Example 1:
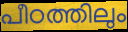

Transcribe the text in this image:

പീഠത്തിലും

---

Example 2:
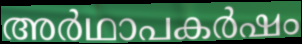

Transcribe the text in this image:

അർഥാപകർഷം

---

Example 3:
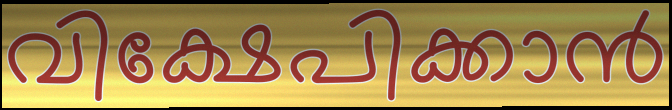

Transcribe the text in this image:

വിക്ഷേപിക്കാൻ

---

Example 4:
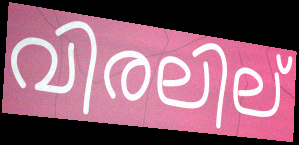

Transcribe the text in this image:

വിരലില്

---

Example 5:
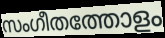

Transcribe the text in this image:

സംഗീതത്തോളം